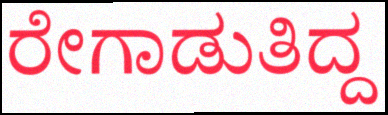
ರೇಗಾಡುತಿದ್ದ